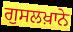
ਗੁਸਲਖ਼ਾਨੇ